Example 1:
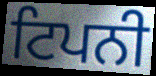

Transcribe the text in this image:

ਟਿਪਨੀ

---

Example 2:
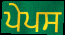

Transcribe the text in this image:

ਪੇਪਸ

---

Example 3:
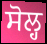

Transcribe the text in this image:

ਸੋਲ੍ਹ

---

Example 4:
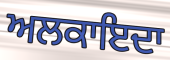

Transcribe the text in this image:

ਅਲਕਾਇਦਾ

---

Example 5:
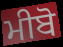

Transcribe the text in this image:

ਮੀਬੋ